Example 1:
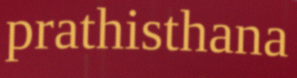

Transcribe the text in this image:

prathisthana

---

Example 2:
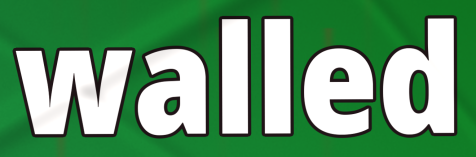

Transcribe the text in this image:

walled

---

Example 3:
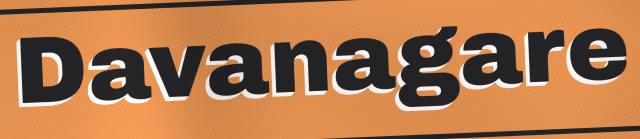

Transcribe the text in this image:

Davanagare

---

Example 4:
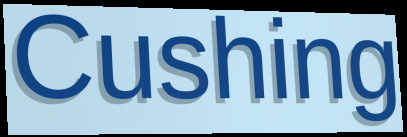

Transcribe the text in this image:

Cushing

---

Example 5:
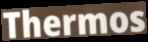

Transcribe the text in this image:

Thermos